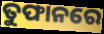
ତୁଫାନରେ